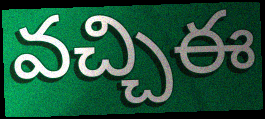
వచ్చిఈ